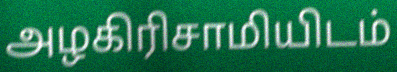
அழகிரிசாமியிடம்